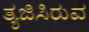
ತ್ಯಜಿಸಿರುವ